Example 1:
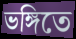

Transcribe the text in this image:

ভঙ্গিতে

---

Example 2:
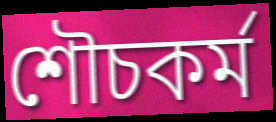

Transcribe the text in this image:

শৌচকর্ম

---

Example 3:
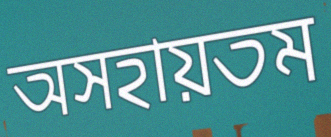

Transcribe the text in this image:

অসহায়তম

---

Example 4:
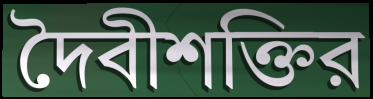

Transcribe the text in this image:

দৈবীশক্তির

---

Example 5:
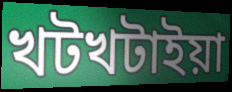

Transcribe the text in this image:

খটখটাইয়া